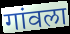
गांवला